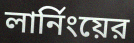
লার্নিংয়ের